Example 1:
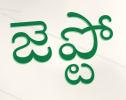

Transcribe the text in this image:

జెప్టో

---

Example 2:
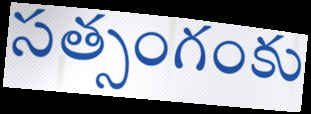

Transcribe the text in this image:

సత్సంగంకు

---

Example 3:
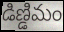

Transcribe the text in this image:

డిణ్డిమం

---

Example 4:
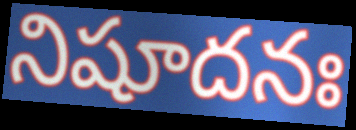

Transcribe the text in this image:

నిషూదనః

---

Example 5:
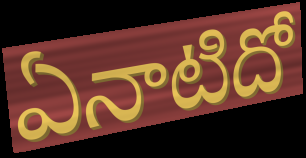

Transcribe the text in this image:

ఏనాటిదో